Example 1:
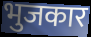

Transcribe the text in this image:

भुजकार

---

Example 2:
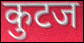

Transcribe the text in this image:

कुटज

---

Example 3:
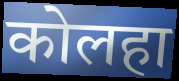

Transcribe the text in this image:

कोलहा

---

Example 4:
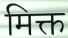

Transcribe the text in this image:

मिक्त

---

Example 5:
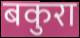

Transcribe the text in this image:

बकुरा